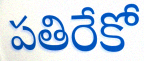
పతిరేకో